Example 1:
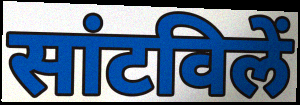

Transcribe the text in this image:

सांटविलें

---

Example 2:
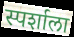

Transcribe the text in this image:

स्पर्शाला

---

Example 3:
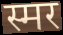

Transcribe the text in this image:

स्मर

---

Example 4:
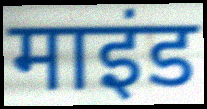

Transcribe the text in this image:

माइंड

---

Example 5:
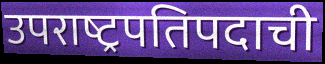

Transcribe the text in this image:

उपराष्ट्रपतिपदाची